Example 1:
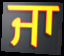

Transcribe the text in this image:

ਜਾ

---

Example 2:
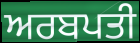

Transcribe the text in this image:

ਅਰਬਪਤੀ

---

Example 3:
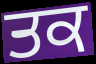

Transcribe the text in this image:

ਤਕ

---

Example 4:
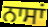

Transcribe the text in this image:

ਨਾਸਾਂ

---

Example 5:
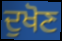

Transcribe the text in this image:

ਦੁਖੋਣ